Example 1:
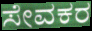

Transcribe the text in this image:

ಸೇವಕರ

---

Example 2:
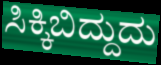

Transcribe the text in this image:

ಸಿಕ್ಕಿಬಿದ್ದುದು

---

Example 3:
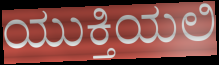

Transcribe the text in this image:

ಯುಕ್ತಿಯಲಿ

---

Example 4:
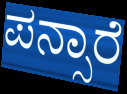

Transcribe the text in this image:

ಪನ್ಸಾರೆ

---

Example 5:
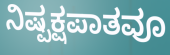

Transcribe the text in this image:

ನಿಷ್ಪಕ್ಷಪಾತವೂ